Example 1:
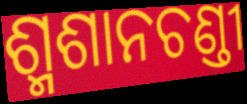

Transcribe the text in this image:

ଶ୍ମଶାନଚଣ୍ଡୀ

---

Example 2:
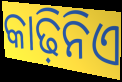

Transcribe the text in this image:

କାଢ଼ିନିଏ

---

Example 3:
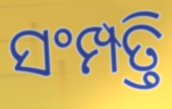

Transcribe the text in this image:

ସଂମ୍ପତ୍ତି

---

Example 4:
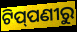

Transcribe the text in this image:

ଟିପ୍‌ପଣୀରୁ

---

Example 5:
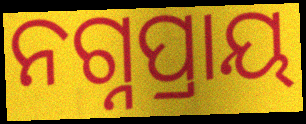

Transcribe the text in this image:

ନଗ୍ନପ୍ରାୟ